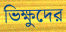
ভিক্ষুদের